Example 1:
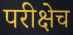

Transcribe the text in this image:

परीक्षेच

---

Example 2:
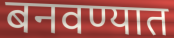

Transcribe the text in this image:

बनवण्यात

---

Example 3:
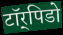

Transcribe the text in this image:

टॉर्पिडो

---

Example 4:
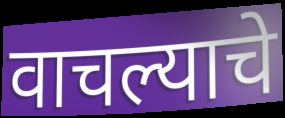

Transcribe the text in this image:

वाचल्याचे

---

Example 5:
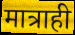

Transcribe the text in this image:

मात्राही